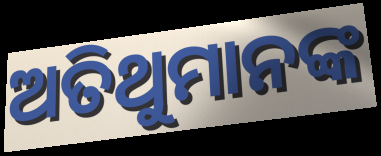
ଅତିଥୁମାନଙ୍କ